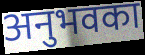
अनुभवका